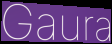
Gaura